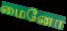
மைனோ